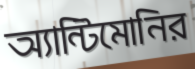
অ্যান্টিমোনির